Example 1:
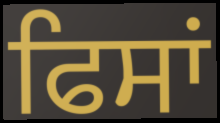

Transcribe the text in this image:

ਫਿਸਾਂ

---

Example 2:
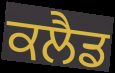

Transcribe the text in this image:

ਕਲੈਡ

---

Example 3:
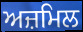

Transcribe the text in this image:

ਅਜ਼ਮਿਲ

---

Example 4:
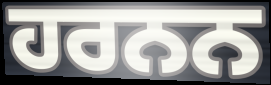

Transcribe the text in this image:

ਹਰਨਨ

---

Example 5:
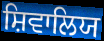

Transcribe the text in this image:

ਸ਼ਿਵਾਲਿਯ